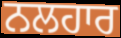
ਨਲਹਾਰ